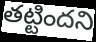
తట్టిందని